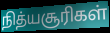
நித்யசூரிகள்